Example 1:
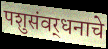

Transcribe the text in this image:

पशुसंवर्धनाचे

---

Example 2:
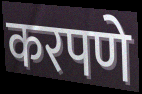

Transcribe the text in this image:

करपणे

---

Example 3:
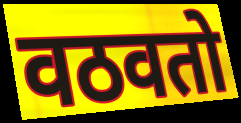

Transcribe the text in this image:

वठवतो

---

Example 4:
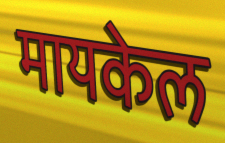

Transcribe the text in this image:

मायकेल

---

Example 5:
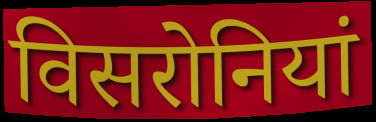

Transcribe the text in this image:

विसरोनियां